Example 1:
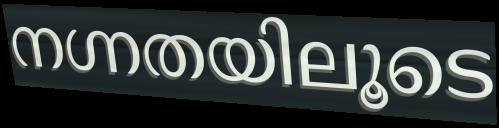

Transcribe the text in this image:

നഗ്നതയിലൂടെ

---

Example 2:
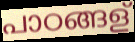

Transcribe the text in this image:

പാഠങ്ങള്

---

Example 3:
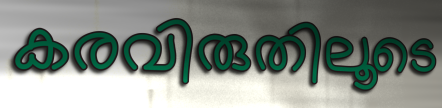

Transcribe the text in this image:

കരവിരുതിലൂടെ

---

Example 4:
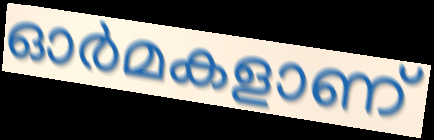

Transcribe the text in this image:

ഓർമകളാണ്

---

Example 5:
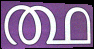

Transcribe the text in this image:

ത്ഥ